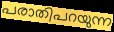
പരാതിപറയുന്ന